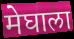
मेघाला